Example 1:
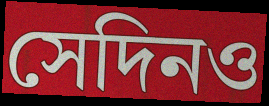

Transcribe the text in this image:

সেদিনও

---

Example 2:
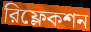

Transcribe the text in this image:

রিফ্লেকশন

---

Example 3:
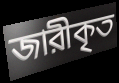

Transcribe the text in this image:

জারীকৃত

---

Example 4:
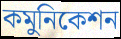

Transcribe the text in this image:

কমুনিকেশন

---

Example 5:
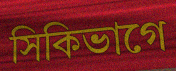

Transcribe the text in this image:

সিকিভাগে